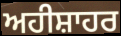
ਅਹੀਸ਼ਾਹਰ